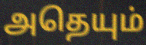
அதெயும்